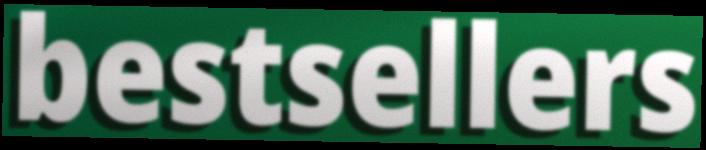
bestsellers